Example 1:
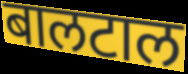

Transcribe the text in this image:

बालटाल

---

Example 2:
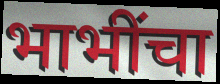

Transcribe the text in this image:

भाभींचा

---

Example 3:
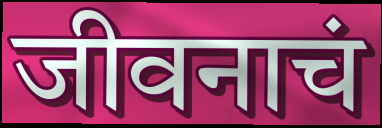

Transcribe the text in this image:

जीवनाचं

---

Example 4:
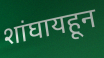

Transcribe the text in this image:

शांघायहून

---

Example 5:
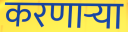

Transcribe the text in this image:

करणार्‍या